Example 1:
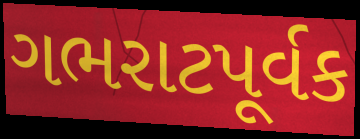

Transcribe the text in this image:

ગભરાટપૂર્વક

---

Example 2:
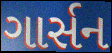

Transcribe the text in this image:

ગાર્સન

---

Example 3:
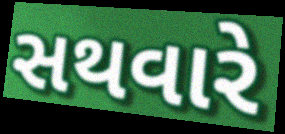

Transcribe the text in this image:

સથવારે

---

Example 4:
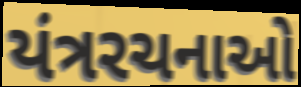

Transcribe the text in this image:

યંત્રરચનાઓ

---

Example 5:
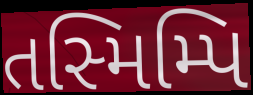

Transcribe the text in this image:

તસ્મિમ્પિ